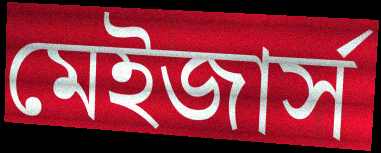
মেইজার্স